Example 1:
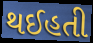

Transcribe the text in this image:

થઈહતી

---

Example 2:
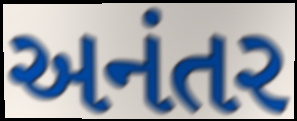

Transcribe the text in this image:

અનંતર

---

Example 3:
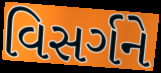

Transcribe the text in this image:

વિસર્ગને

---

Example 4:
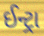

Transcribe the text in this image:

ઈન્ટ્રા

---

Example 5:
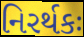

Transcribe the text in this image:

નિરર્થકઃ